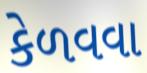
કેળવવા